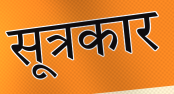
सूत्रकार